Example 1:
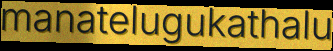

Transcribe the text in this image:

manatelugukathalu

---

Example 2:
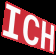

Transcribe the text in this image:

ICH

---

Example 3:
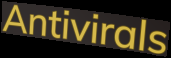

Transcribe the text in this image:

Antivirals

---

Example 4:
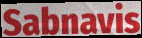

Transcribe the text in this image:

Sabnavis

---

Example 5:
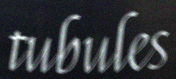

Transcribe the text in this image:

tubules